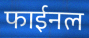
फाईनल